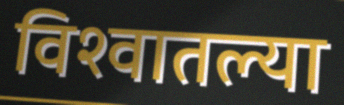
विश्वातल्या